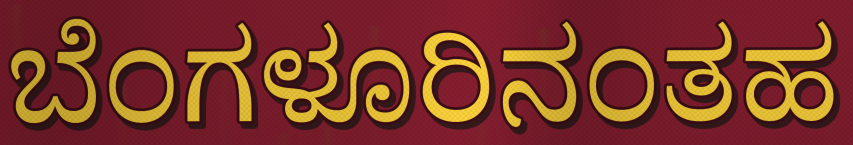
ಬೆಂಗಳೂರಿನಂತಹ